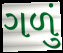
ગળું